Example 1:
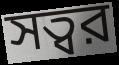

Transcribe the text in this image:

সত্বর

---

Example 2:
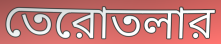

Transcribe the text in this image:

তেরোতলার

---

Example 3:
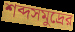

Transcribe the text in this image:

শব্দসমুদ্রের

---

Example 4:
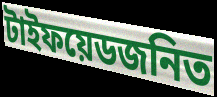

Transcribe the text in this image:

টাইফয়েডজনিত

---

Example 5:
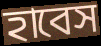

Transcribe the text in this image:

হাবেস